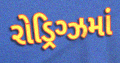
રોડ્રિગ્ઝમાં